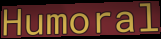
Humoral